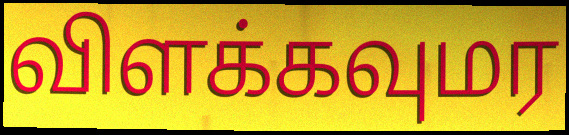
விளக்கவுமர